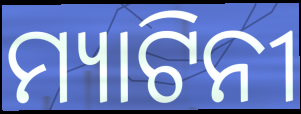
ମ୍ୟାଟିନୀ